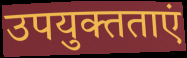
उपयुक्तताएं